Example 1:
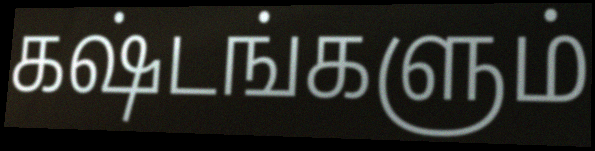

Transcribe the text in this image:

கஷ்டங்களும்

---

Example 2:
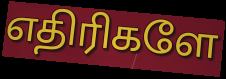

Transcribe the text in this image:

எதிரிகளே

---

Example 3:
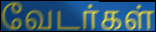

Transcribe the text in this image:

வேடர்கள்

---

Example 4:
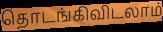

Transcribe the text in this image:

தொடங்கிவிடலாம்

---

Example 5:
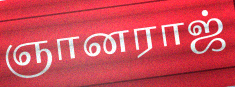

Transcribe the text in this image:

ஞானராஜ்